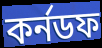
কর্নডফ